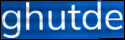
ghutde